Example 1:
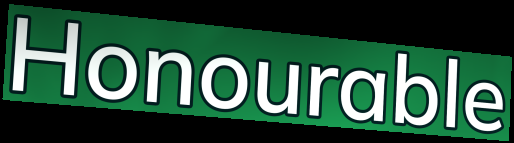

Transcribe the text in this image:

Honourable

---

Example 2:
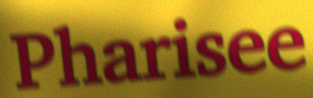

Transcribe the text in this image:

Pharisee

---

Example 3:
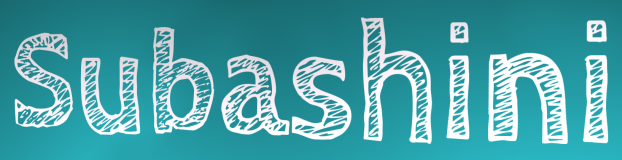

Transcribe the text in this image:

Subashini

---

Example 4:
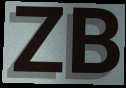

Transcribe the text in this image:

ZB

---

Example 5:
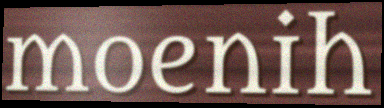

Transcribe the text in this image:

moenih